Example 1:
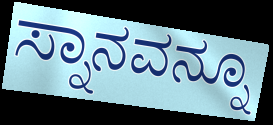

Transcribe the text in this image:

ಸ್ನಾನವನ್ನೂ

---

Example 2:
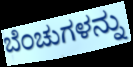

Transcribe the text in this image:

ಬೆಂಚುಗಳನ್ನು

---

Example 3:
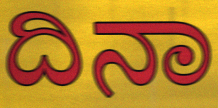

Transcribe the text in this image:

ದಿನಾ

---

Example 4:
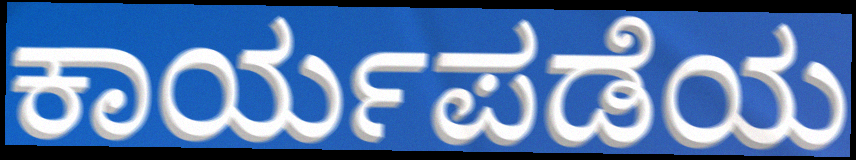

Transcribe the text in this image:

ಕಾರ್ಯಪಡೆಯ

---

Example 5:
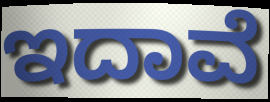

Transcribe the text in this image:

ಇದಾವೆ